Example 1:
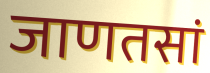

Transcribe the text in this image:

जाणतसां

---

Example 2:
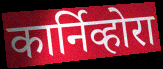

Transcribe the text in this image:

कार्निव्होरा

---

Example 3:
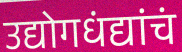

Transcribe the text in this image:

उद्योगधंद्यांचं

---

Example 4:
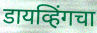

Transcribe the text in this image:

डायव्हिंगचा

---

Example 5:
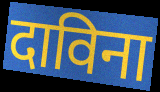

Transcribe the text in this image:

दाविना